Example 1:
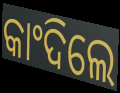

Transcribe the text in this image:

କାଂଦିଲେ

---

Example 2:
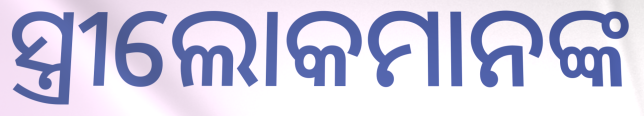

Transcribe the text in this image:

ସ୍ତ୍ରୀଲୋକମାନଙ୍କ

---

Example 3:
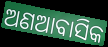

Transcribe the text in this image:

ଅଣଆବାସିକ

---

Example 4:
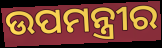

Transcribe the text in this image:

ଉପମନ୍ତ୍ରୀର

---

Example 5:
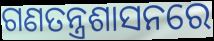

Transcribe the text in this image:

ଗଣତନ୍ତ୍ରଶାସନରେ